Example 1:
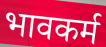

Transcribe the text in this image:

भावकर्म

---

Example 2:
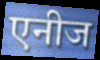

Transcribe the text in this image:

एनीज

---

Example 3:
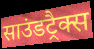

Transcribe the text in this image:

साउंडट्रैक्स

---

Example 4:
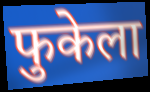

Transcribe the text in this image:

फुकेला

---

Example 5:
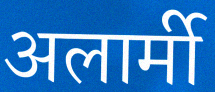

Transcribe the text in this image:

अलार्मी